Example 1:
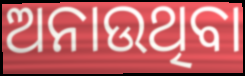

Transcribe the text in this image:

ଅନାଉଥିବା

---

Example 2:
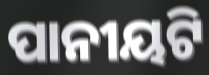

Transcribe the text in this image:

ପାନୀୟଟି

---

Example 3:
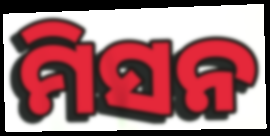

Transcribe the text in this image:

ମିସନ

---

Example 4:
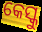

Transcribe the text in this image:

କେସ୍କୁ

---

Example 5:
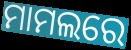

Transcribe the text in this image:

ମାମଲରେ